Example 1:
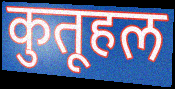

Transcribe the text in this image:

कुतूहल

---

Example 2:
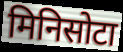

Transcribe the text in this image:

मिनिसोटा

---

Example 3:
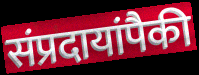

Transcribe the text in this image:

संप्रदायांपैकी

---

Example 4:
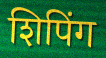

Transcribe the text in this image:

शिपिंग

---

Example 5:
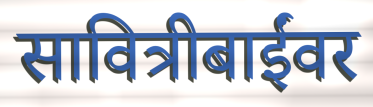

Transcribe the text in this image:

सावित्रीबाईंवर